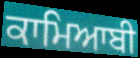
ਕਾਮਿਆਬੀ